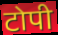
टोपी